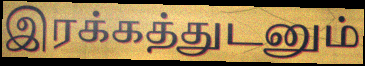
இரக்கத்துடனும்